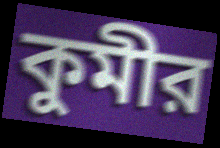
কুমীর